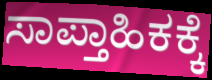
ಸಾಪ್ತಾಹಿಕಕ್ಕೆ